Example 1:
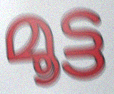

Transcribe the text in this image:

മൂട്ട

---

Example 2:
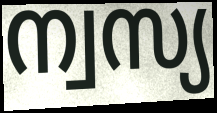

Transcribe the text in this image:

ന്വസ്യ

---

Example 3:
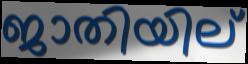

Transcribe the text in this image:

ജാതിയില്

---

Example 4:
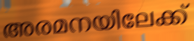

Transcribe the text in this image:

അരമനയിലേക്ക്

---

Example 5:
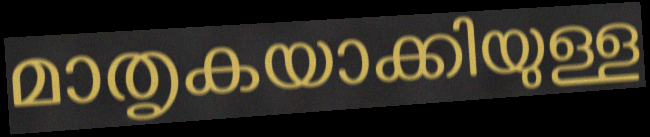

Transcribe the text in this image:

മാതൃകയാക്കിയുള്ള